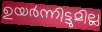
ഉയർന്നിട്ടുമില്ല